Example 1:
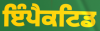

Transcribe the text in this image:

ਇੰਪੈਕਟਿਡ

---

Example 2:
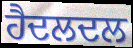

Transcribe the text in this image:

ਹੈਦਲਦਲ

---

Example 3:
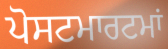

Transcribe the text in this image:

ਪੋਸਟਮਾਰਟਮਾਂ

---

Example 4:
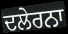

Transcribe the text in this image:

ਦਲੇਰਨਾ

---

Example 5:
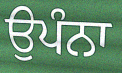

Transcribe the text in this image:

ਉਪੰਨਾ